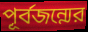
পূর্বজন্মের